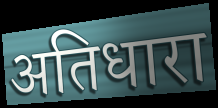
अतिधारा